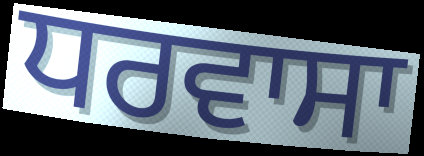
ਧਰਵਾਸਾ